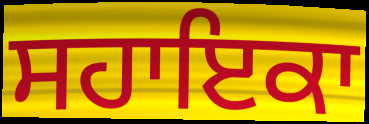
ਸਹਾਇਕਾ